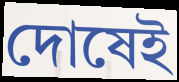
দোষেই